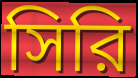
সিরি